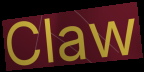
Claw